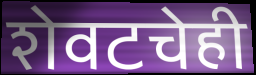
शेवटचेही